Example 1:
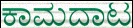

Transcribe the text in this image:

ಕಾಮದಾಟ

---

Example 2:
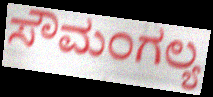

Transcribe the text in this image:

ಸೌಮಂಗಲ್ಯ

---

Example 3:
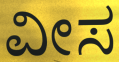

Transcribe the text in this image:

ವೀಸ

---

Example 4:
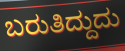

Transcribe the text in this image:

ಬರುತಿದ್ದುದು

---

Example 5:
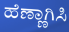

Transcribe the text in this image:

ಹೆಣ್ಣಾಗಿಸಿ